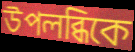
উপলব্ধিকে